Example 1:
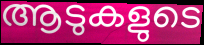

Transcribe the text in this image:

ആടുകളുടെ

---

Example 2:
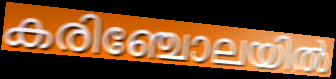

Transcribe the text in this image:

കരിഞ്ചോലയിൽ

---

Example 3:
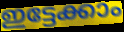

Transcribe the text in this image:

ഇട്ടേക്കാം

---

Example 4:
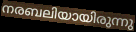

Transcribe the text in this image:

നരബലിയായിരുന്നു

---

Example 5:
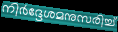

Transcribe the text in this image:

നിർദ്ദേശമനുസരിച്ച്